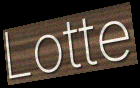
Lotte